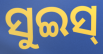
ସୁଇସ୍